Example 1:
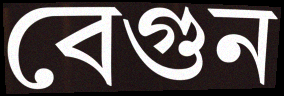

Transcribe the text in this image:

বেগুন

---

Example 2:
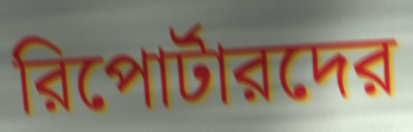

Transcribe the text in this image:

রিপোর্টারদের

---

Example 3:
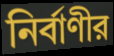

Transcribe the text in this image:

নির্বাণীর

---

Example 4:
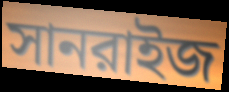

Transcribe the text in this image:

সানরাইজ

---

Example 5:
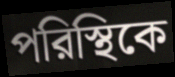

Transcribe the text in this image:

পরিস্থিকে